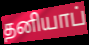
தனியாப்